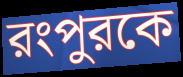
রংপুরকে